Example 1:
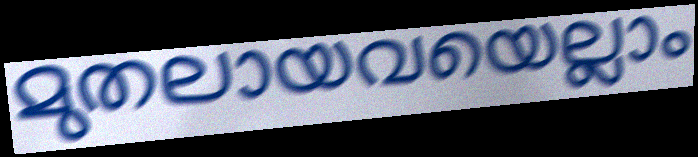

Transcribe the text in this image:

മുതലായവയെല്ലാം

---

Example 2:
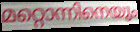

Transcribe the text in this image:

മറ്റൊന്നിനെയും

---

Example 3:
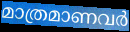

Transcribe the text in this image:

മാത്രമാണവർ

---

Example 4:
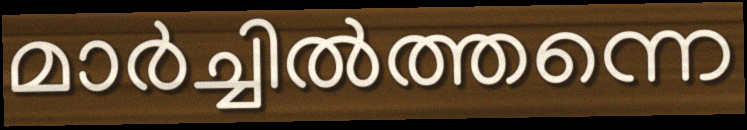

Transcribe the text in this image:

മാർച്ചിൽത്തന്നെ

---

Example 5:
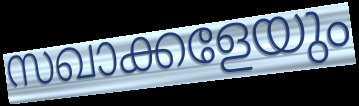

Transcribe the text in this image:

സഖാക്കളേയും